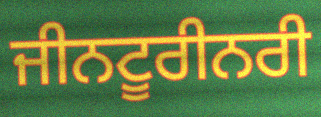
ਜੀਨਟੂਰੀਨਰੀ